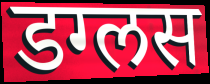
डग्लस